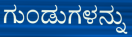
ಗುಂಡುಗಳನ್ನು